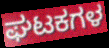
ಘಟಕಗಳ